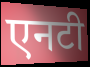
एनटी